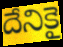
దేనికై